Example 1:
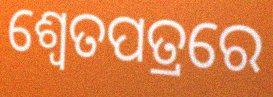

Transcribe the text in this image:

ଶ୍ଵେତପତ୍ରରେ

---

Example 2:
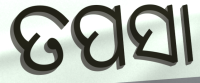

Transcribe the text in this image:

ତପସା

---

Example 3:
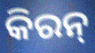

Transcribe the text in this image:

କିରନ୍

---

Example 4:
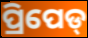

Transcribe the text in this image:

ପ୍ରିପେଡ୍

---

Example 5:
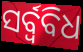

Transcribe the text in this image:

ସର୍ବ୍ବବିଧ